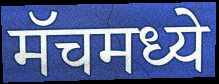
मॅचमध्ये